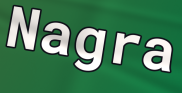
Nagra